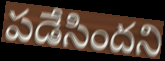
పడేసిందని